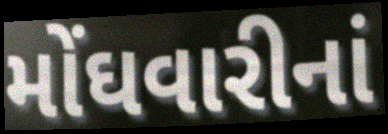
મોંઘવારીનાં